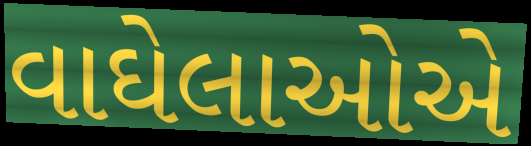
વાઘેલાઓએ